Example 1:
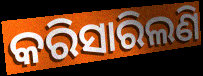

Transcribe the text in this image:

କରିସାରିଲଣି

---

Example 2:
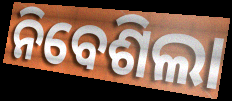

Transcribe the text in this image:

ନିବେଶିଲା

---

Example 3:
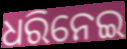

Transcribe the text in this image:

ଧରିନେଇ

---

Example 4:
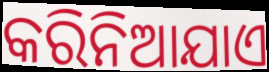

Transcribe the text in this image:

କରିନିଆଯାଏ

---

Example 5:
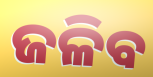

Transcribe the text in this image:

ଜଳିବ